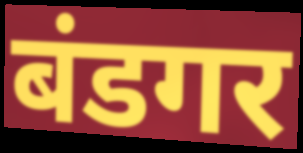
बंडगर